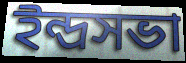
ইন্দ্রসভা